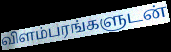
விளம்பரங்களுடன்